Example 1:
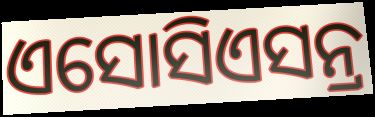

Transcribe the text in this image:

ଏସୋସିଏସନ୍ର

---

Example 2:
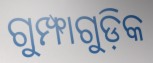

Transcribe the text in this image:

ଗୁମ୍ଫାଗୁଡ଼ିକ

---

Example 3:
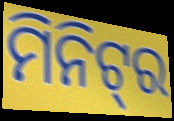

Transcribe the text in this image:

ମିନିଟ୍‌ର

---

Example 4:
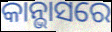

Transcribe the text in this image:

କାନ୍ଭାସରେ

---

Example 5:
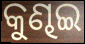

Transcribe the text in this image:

କୁଣ୍ଢଇ